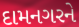
દામનગરને